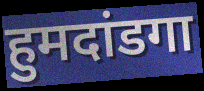
हुमदांडगा